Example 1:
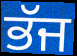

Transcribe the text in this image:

ਭੱਜ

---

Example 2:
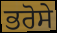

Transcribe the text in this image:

ਭਰੋਸੇ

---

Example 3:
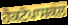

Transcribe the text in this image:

ਹੈਕਟੋਪਾਸਕਲ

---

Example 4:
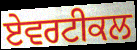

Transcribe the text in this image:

ਏਵਰਟੀਕਲ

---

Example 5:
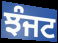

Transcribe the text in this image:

ਝੰਜਟ